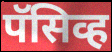
पॅसिव्ह